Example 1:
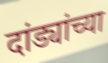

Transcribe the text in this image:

दांड्यांच्या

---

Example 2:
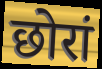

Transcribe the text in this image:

छोरां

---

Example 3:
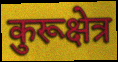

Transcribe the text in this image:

कुरूक्षेत्र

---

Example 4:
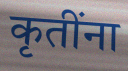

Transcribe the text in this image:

कृतींना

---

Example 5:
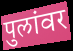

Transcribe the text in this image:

पुलांवर